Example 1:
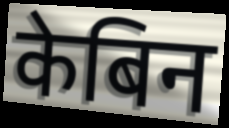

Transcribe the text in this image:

केबिन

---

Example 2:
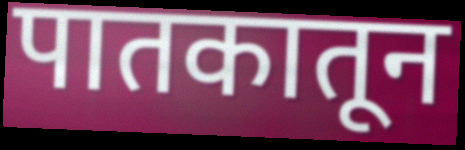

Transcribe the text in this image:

पातकातून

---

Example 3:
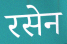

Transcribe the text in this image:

रसेन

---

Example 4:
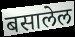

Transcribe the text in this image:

बसालेल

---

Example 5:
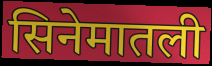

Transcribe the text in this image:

सिनेमातली